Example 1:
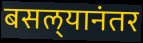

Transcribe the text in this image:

बसल्यानंतर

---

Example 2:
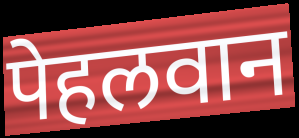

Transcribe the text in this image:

पेहलवान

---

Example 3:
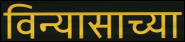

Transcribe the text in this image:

विन्यासाच्या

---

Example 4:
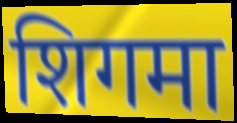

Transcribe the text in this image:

शिगमा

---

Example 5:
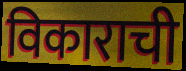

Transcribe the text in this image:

विकाराची